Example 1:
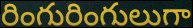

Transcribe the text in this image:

రింగురింగులుగా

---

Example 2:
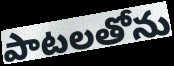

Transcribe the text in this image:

పాటలతోను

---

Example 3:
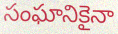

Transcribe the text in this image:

సంఘానికైనా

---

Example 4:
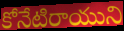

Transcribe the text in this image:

కోనేటిరాయుని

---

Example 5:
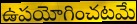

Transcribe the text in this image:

ఉపయోగించటమే